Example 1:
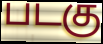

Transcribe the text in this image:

படகு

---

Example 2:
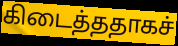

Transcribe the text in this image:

கிடைத்ததாகச்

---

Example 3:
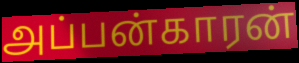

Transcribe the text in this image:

அப்பன்காரன்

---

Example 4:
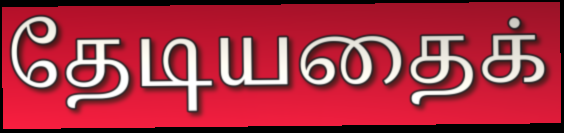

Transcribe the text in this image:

தேடியதைக்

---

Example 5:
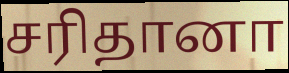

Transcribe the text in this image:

சரிதானா